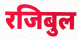
रजिबुल